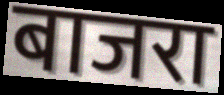
बाजरा